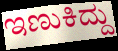
ಇಣುಕಿದ್ದು